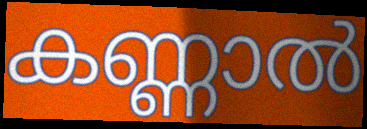
കണ്ണാൽ